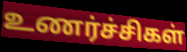
உணர்ச்சிகள்